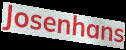
Josenhans